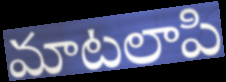
మాటలాపి